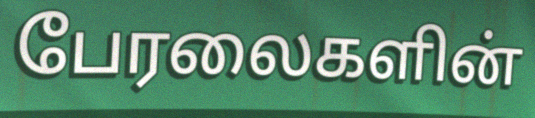
பேரலைகளின்